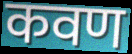
कवण